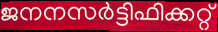
ജനനസർട്ടിഫിക്കറ്റ്